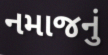
નમાજનું